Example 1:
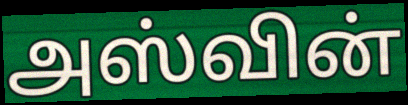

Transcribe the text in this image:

அஸ்வின்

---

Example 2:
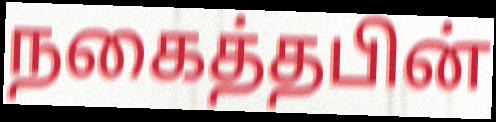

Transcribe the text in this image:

நகைத்தபின்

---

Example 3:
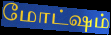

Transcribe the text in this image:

மோட்ஷம்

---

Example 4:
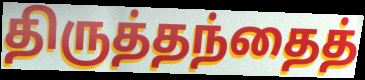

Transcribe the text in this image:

திருத்தந்தைத்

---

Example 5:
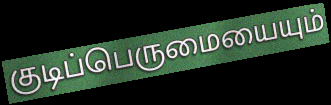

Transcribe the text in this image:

குடிப்பெருமையையும்